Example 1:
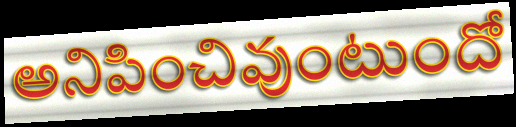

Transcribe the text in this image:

అనిపించివుంటుందో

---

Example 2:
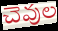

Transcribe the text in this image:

చెవుల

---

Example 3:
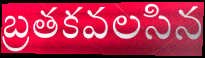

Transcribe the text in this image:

బ్రతకవలసిన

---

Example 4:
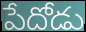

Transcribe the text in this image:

పేదోడు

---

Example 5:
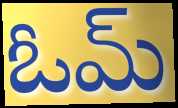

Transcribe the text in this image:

ఓమ్